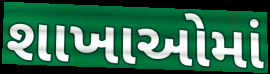
શાખાઓમાં